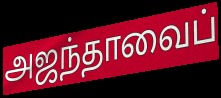
அஜந்தாவைப்